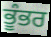
ਭੂੰਭਰ